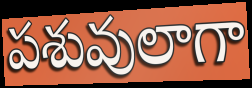
పశువులాగా